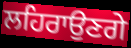
ਲਹਿਰਾਉਣਗੇ